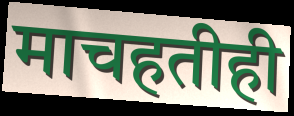
माचहतीही